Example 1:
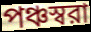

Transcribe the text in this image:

পঞ্চস্বরা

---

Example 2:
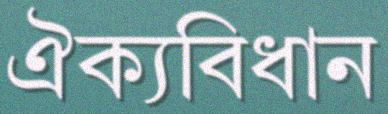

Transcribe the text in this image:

ঐক্যবিধান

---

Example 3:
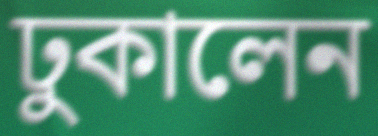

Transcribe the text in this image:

ঢুকালেন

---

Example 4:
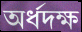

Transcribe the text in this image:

অর্ধদক্ষ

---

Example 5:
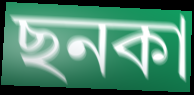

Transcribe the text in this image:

ছনকা